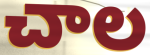
చాల